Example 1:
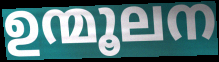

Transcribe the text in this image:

ഉന്മൂലന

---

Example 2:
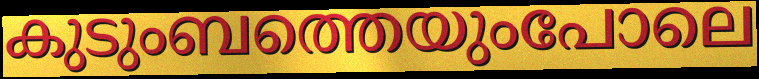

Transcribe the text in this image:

കുടുംബത്തെയുംപോലെ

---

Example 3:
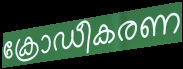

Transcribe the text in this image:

ക്രോഡീകരണ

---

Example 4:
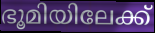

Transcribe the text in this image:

ഭൂമിയിലേക്ക്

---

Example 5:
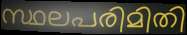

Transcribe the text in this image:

സ്ഥലപരിമിതി